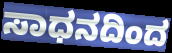
ಸಾಧನದಿಂದ